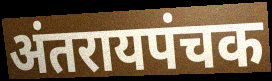
अंतरायपंचक